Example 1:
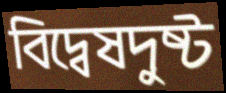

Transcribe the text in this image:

বিদ্বেষদুষ্ট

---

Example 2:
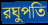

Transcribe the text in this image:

রঘুপতি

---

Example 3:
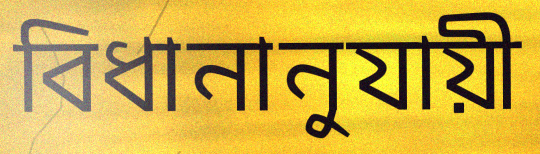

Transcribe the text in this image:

বিধানানুযায়ী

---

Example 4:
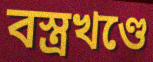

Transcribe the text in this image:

বস্ত্রখণ্ডে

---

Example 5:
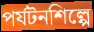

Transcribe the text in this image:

পর্যটনশিল্পে